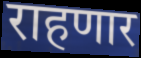
राहणार